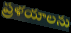
ప్రళయాలను